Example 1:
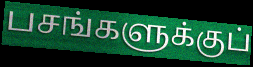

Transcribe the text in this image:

பசங்களுக்குப்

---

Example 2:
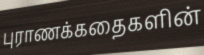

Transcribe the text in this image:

புராணக்கதைகளின்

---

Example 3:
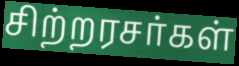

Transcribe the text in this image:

சிற்றரசர்கள்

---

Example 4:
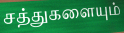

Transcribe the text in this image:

சத்துகளையும்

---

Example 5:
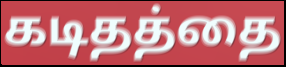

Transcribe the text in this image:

கடிதத்தை